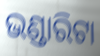
ଭଣ୍ଡାରିଟା